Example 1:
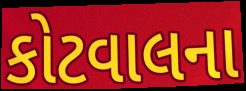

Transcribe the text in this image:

કોટવાલના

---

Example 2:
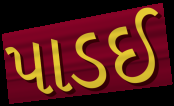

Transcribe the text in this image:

પાડઈ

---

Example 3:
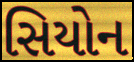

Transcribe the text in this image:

સિયોન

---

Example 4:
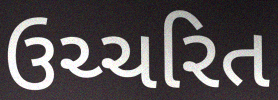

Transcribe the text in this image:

ઉચ્ચરિત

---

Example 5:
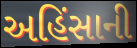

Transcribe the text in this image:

અહિંસાની